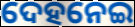
ଦେହନେଇ